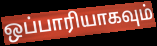
ஒப்பாரியாகவும்